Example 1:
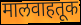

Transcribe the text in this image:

मालवाहतूक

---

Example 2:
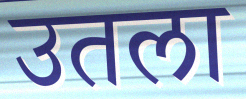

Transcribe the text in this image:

उतला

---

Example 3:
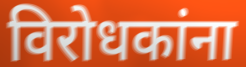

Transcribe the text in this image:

विरोधकांना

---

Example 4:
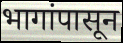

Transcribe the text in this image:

भागांपासून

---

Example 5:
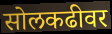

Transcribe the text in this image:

सोलकढीवर